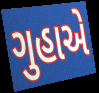
ગુહાએ